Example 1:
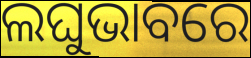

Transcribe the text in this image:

ଲଘୁଭାବରେ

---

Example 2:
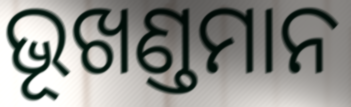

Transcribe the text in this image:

ଭୂଖଣ୍ଡମାନ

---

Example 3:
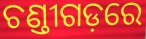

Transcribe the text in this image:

ଚଣ୍ଡୀଗଡ଼ରେ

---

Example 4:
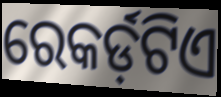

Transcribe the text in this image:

ରେକର୍ଡ଼ଟିଏ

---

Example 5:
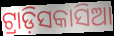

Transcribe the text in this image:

ଟ୍ରାଡ଼ିସକାସିଆ